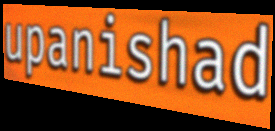
upanishad